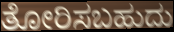
ತೋರಿಸಬಹುದು